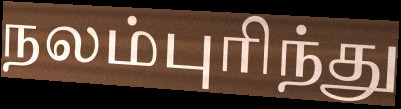
நலம்புரிந்து